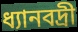
ধ্যানবদ্রী